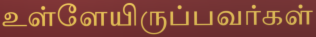
உள்ளேயிருப்பவர்கள்